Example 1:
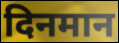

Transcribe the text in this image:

दिनमान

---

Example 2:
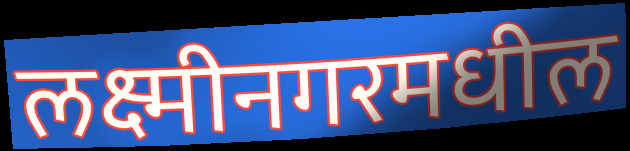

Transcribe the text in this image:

लक्ष्मीनगरमधील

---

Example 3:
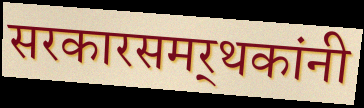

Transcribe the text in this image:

सरकारसमर्थकांनी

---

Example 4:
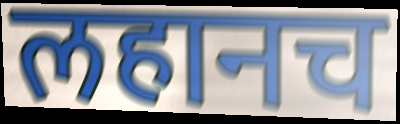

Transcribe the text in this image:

लहानच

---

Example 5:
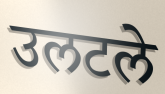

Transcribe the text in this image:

उलटले